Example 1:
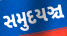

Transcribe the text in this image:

સમુદયઞ્ચ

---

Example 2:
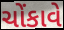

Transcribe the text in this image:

ચોંકાવે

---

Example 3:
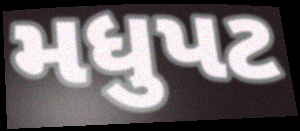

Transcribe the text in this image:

મધુપટ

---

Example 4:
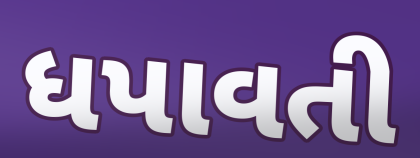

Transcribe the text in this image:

ધપાવતી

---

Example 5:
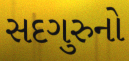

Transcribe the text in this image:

સદગુરુનો